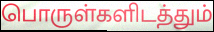
பொருள்களிடத்தும்